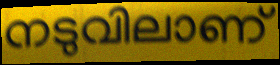
നടുവിലാണ്